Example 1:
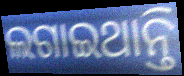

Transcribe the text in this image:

ଲଗାଇଥାନ୍ତି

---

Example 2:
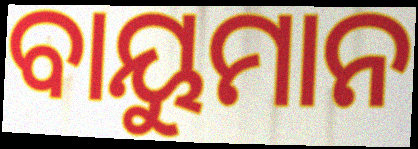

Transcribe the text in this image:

ବାୟୁମାନ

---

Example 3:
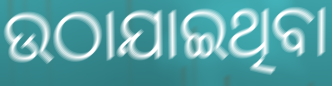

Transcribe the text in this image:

ଉଠାଯାଇଥିବା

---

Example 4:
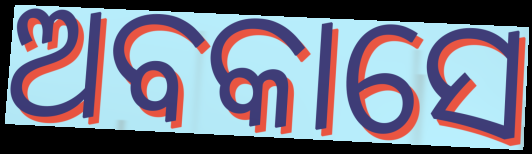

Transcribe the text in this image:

ଅବକାସେ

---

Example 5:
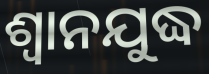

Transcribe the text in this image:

ଶ୍ଵାନଯୁଦ୍ଧ